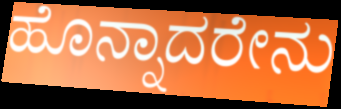
ಹೊನ್ನಾದರೇನು